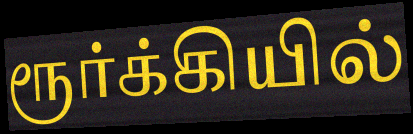
ரூர்க்கியில்